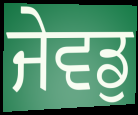
ਜੇਵਡੁ